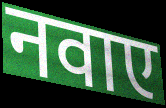
नवाए